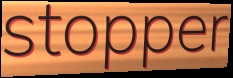
stopper